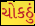
ચોકઠું